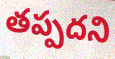
తప్పదని